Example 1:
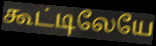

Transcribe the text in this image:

கூட்டிலேயே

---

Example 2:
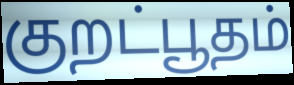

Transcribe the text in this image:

குறட்பூதம்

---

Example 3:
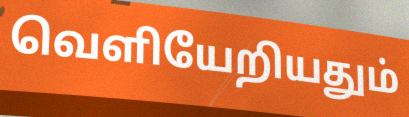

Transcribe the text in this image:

வெளியேறியதும்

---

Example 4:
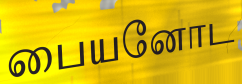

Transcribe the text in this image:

பையனோட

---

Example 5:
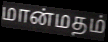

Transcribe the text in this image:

மான்மதம்